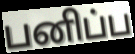
பனிப்ப